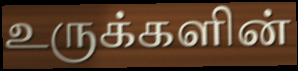
உருக்களின்